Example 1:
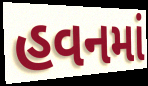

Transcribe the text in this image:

હવનમાં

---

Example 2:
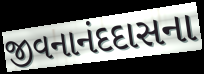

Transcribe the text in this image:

જીવનાનંદદાસના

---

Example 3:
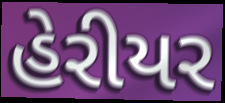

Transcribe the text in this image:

હેરીયર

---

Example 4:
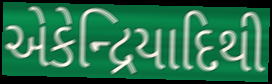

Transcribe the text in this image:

એકેન્દ્રિયાદિથી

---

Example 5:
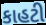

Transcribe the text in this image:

કાહટી